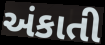
અંકાતી